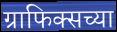
ग्राफिक्सच्या